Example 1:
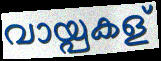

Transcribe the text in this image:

വായ്പകള്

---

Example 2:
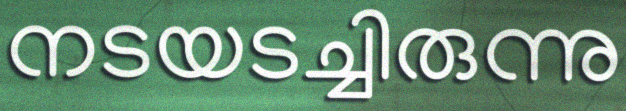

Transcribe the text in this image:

നടയടച്ചിരുന്നു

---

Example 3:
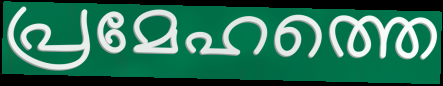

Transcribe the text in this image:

പ്രമേഹത്തെ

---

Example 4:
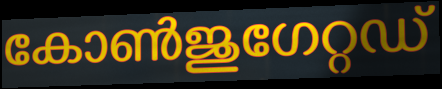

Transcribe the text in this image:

കോൺജുഗേറ്റഡ്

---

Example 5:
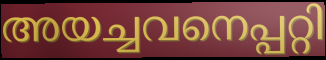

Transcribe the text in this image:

അയച്ചവനെപ്പറ്റി